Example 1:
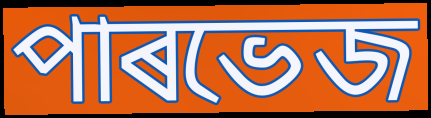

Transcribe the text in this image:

পাৰভেজ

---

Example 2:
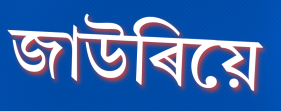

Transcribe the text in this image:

জাউৰিয়ে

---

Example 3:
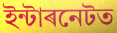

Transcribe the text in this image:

ইন্টাৰনেটত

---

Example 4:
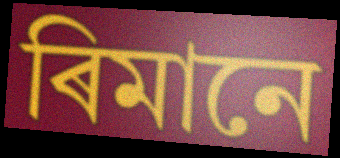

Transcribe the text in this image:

ৰিমানে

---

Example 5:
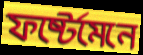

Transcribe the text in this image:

ফৰ্ষ্টেমেনে